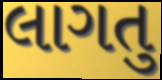
લાગતુ